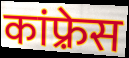
कांफ़्रेस